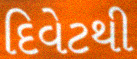
દિવેટથી